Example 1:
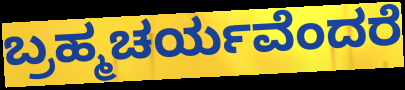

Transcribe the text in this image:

ಬ್ರಹ್ಮಚರ್ಯವೆಂದರೆ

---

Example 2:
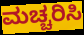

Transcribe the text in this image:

ಮಚ್ಚರಿಸಿ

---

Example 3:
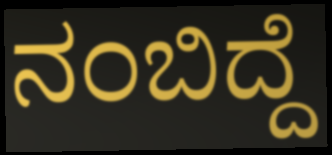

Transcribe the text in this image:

ನಂಬಿದ್ದೆ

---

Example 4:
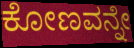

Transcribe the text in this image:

ಕೋಣವನ್ನೇ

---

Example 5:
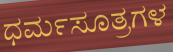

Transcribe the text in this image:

ಧರ್ಮಸೂತ್ರಗಳ